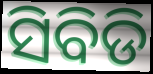
ସିବିଡି